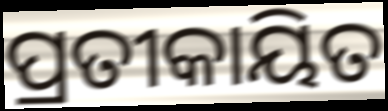
ପ୍ରତୀକାୟିତ